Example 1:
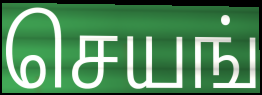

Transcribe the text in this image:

செயங்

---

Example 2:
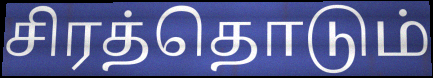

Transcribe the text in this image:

சிரத்தொடும்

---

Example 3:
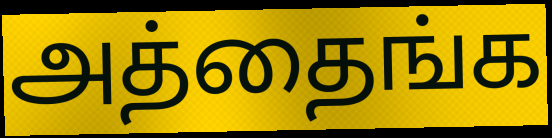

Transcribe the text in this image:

அத்தைங்க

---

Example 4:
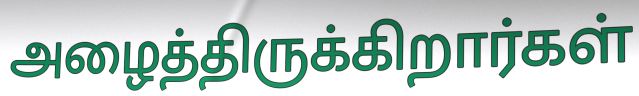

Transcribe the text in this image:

அழைத்திருக்கிறார்கள்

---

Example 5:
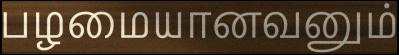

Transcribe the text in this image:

பழமையானவனும்